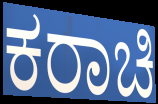
ಕರಾಚಿ